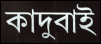
কাদুবাই